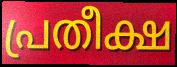
പ്രതീക്ഷ